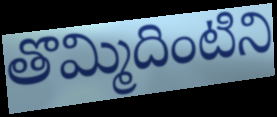
తొమ్మిదింటిని